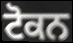
ਟੋਕਨ